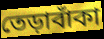
তেড়াবাঁকা